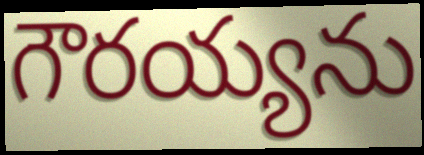
గౌరయ్యను